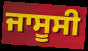
ਜਾਸੂਸੀ